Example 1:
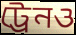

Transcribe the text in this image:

ট্রেনও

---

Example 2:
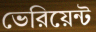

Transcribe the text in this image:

ভেরিয়েন্ট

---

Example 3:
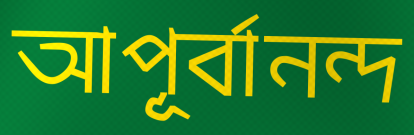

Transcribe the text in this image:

আপূর্বানন্দ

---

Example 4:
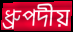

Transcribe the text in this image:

ধ্রুপদীয়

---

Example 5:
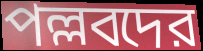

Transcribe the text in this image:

পল্লবদের